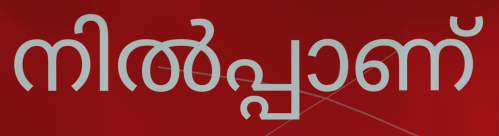
നിൽപ്പാണ്